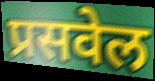
प्रसवेल